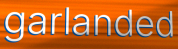
garlanded